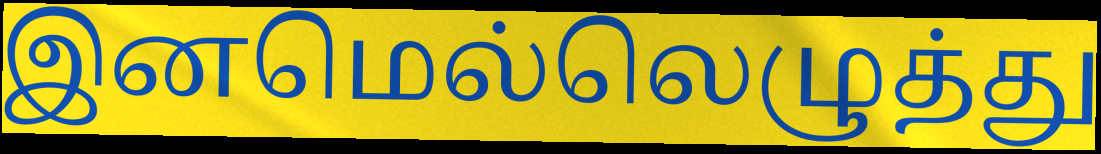
இனமெல்லெழுத்து